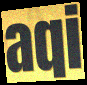
aqi